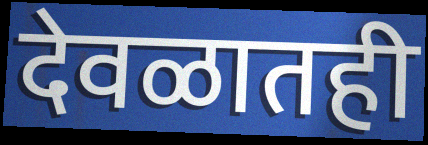
देवळातही